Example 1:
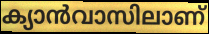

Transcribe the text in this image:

ക്യാൻവാസിലാണ്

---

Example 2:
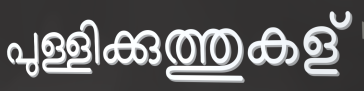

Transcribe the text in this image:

പുള്ളിക്കുത്തുകള്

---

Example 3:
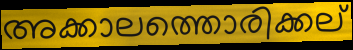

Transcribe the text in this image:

അക്കാലത്തൊരിക്കല്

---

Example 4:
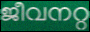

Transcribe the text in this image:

ജീവനറ്റ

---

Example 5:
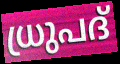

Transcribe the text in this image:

ധ്രുപദ്